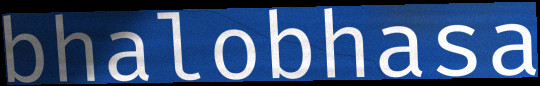
bhalobhasa